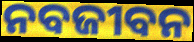
ନବଜୀବନ